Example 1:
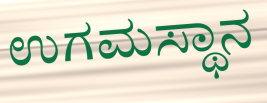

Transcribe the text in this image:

ಉಗಮಸ್ಥಾನ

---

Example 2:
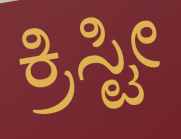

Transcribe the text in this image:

ಕ್ರಿಸ್ಟೀ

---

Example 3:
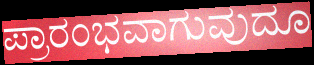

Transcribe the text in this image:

ಪ್ರಾರಂಭವಾಗುವುದೂ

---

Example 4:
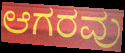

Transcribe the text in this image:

ಆಗರವು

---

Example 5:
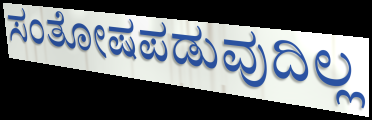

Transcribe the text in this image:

ಸಂತೋಷಪಡುವುದಿಲ್ಲ